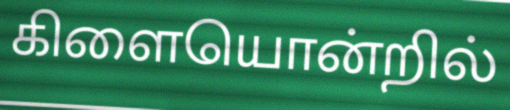
கிளையொன்றில்